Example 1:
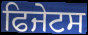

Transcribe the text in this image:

ਫਿਜੇਟਸ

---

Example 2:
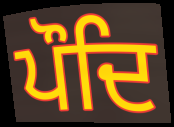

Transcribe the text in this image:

ਪੌਦਿ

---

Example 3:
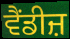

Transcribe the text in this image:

ਵੈਂਡੀਜ਼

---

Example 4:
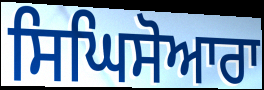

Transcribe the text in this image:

ਸਿਘਿਸੋਆਰਾ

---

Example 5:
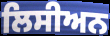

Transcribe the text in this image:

ਲਿਸੀਅਨ